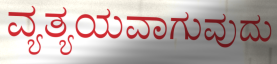
ವ್ಯತ್ಯಯವಾಗುವುದು